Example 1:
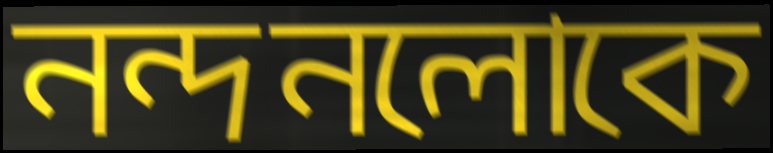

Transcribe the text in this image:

নন্দনলোকে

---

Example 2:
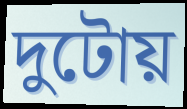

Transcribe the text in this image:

দুটোয়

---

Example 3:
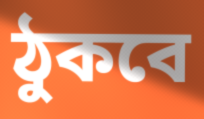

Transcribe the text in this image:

ঠুকবে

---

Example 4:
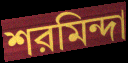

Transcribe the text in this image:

শরমিন্দা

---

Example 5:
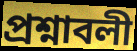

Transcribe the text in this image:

প্রশ্নাবলী